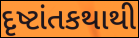
દૃષ્ટાંતકથાથી